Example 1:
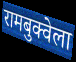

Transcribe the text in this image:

रामबुक्वेला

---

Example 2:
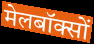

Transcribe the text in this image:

मेलबॉक्सों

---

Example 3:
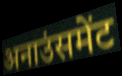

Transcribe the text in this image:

अनाउंसमेंट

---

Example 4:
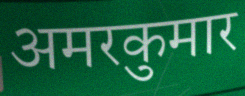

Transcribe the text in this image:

अमरकुमार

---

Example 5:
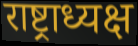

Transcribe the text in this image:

राष्ट्राध्यक्ष